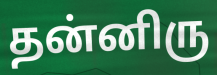
தன்னிரு